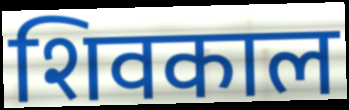
शिवकाल